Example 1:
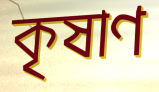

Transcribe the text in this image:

কৃষাণ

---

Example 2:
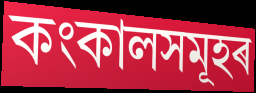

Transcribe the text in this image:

কংকালসমূহৰ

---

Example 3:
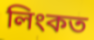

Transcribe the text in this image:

লিংকত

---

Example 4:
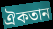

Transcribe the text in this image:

ঐকতান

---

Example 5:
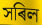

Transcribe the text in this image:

সৰিল